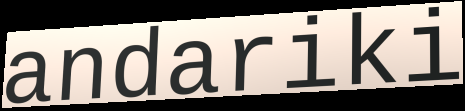
andariki